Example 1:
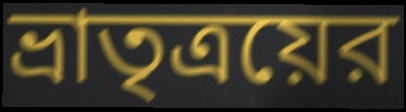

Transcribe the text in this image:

ভ্রাতৃত্রয়ের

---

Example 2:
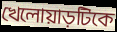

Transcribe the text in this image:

খেলোয়াড়টিকে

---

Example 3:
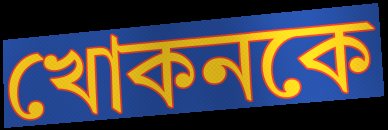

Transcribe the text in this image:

খোকনকে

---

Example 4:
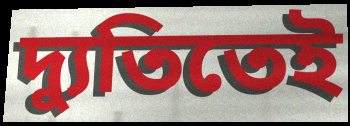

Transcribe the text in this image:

দ্যুতিতেই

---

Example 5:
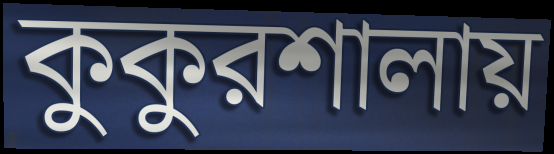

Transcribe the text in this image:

কুকুরশালায়